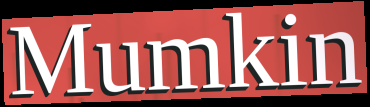
Mumkin